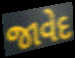
જાવેદ